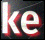
ke